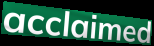
acclaimed